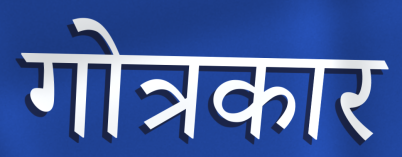
गोत्रकार